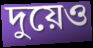
দুয়েও